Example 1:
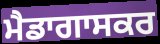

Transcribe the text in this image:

ਮੈਡਾਗਾਸਕਰ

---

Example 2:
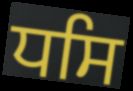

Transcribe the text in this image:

ਧਸਿ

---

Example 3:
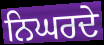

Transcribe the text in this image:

ਨਿਘਰਦੇ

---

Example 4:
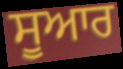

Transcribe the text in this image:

ਸੂਆਰ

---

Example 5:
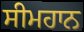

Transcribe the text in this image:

ਸੀਮਹਾਨ